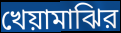
খেয়ামাঝির